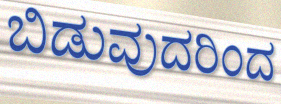
ಬಿಡುವುದರಿಂದ